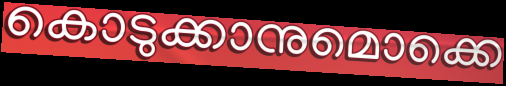
കൊടുക്കാനുമൊക്കെ